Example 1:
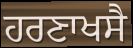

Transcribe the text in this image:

ਹਰਣਾਖਸੈ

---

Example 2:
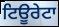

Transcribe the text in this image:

ਟਿਊਰੇਟਾ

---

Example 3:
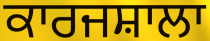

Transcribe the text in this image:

ਕਾਰਜਸ਼ਾਲਾ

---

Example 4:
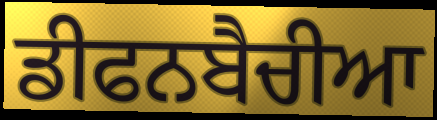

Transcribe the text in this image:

ਡੀਫਨਬੈਚੀਆ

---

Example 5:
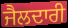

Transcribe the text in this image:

ਜੈਲਦਾਰੀ